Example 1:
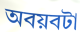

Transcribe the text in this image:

অবয়বটা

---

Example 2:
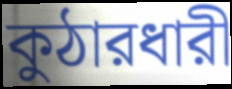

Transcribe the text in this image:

কুঠারধারী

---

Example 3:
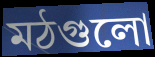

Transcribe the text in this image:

মঠগুলো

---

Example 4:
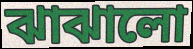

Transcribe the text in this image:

ঝাঝালো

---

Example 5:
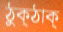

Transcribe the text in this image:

ঠুক্ঠাক্